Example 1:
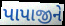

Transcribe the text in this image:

પાપાજીને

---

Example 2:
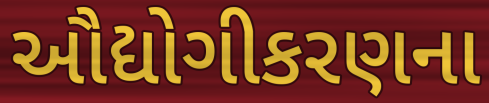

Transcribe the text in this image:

ઔદ્યોગીકરણના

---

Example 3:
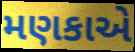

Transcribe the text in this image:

મણકાએ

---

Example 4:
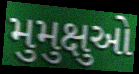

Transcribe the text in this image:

મુમુક્ષુઓ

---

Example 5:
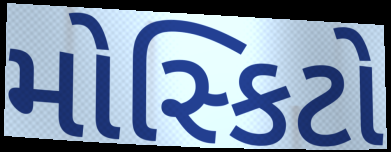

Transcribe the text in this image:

મોસ્કિટો